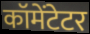
कॉमेंटेटर